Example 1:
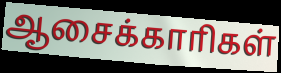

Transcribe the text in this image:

ஆசைக்காரிகள்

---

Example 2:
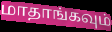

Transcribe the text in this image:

மாதாங்கவும்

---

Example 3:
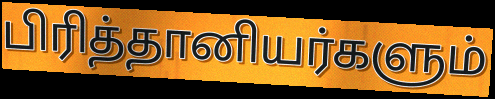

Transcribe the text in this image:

பிரித்தானியர்களும்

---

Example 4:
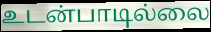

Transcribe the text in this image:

உடன்பாடில்லை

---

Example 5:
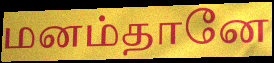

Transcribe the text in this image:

மனம்தானே